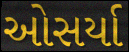
ઓસર્યા